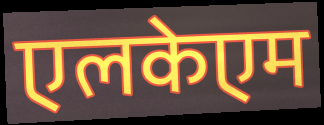
एलकेएम